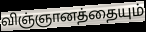
விஞ்ஞானத்தையும்